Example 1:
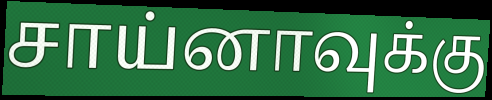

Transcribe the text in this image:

சாய்னாவுக்கு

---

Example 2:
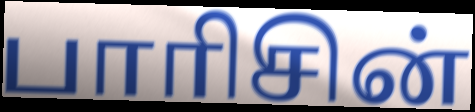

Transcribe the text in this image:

பாரிசின்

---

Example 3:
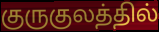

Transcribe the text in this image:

குருகுலத்தில்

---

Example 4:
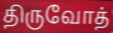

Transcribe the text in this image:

திருவோத்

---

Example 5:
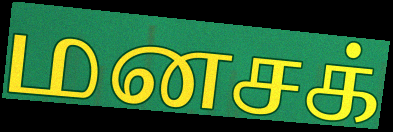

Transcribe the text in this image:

மனசக்